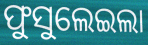
ଫୁସୁଲେଇଲା